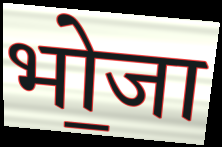
भो॒जा